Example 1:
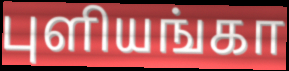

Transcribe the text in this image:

புளியங்கா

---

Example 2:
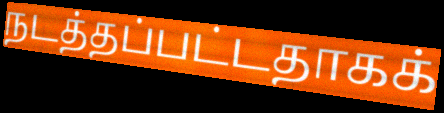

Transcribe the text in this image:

நடத்தப்பட்டதாகக்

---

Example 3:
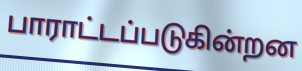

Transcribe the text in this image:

பாராட்டப்படுகின்றன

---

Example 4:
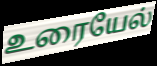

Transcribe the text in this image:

உரையேல்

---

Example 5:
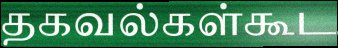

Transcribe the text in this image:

தகவல்கள்கூட